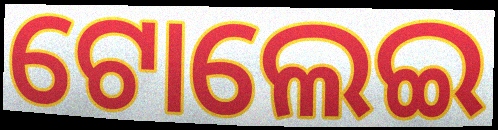
ଟୋଲେଇ